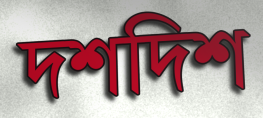
দশদিশ